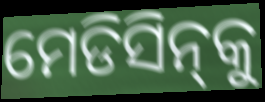
ମେଡିସିନ୍‌କୁ